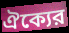
ঐক্যের